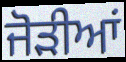
ਜੋਡ਼ੀਆਂ